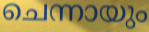
ചെന്നായും